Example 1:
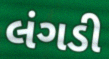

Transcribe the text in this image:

લંગડી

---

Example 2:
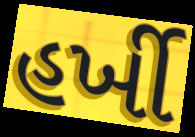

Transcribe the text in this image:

હર્ખી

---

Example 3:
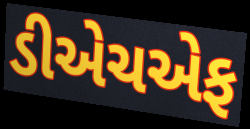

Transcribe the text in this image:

ડીએચએફ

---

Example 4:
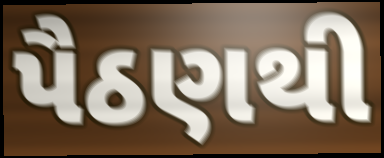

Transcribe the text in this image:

પૈઠણથી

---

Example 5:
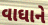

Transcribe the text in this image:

વાઘાને